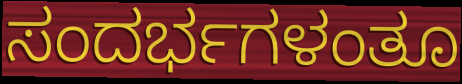
ಸಂದರ್ಭಗಳಂತೂ